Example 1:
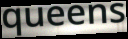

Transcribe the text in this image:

queens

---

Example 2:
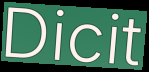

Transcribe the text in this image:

Dicit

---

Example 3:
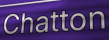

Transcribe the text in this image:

Chatton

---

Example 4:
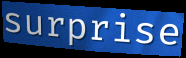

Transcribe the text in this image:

surprise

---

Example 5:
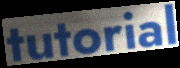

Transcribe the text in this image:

tutorial